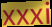
xxxi